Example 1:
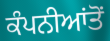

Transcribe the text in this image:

ਕੰਪਨੀਆਂਤੋਂ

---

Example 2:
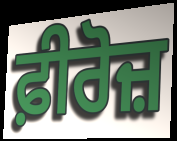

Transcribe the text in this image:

ਫ਼ੀਰੋਜ਼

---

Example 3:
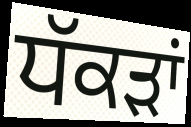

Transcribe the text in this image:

ਧੱਕੜਾਂ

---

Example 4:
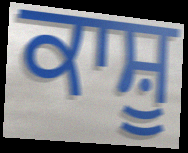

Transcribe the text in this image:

ਕਾਸ਼ੂ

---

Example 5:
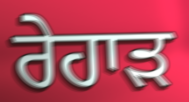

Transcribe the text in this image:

ਰੇਹਾੜ